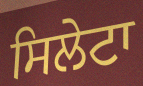
ਸਿਲੇਟਾ